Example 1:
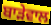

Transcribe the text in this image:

ਬਾੜੇਵਾਲ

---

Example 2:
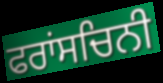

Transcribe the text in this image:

ਫਰਾਂਸਚਿਨੀ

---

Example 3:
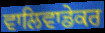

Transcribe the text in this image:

ਵਾਲਿਵਾਡੇਕਰ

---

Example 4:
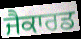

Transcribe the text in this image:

ਜੈਕਾਰਡ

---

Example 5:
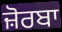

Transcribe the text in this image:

ਜ਼ੋਰਬਾ